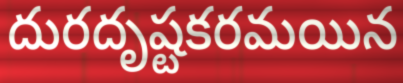
దురదృష్టకరమయిన